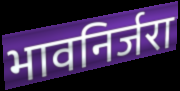
भावनिर्जरा